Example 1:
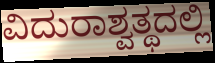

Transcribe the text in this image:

ವಿದುರಾಶ್ವತ್ಥದಲ್ಲಿ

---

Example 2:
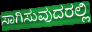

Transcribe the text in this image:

ಸಾಗಿಸುವುದರಲ್ಲಿ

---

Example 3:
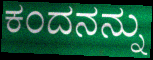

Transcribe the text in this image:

ಕಂದನನ್ನು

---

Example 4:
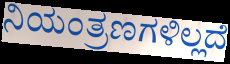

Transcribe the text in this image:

ನಿಯಂತ್ರಣಗಳಿಲ್ಲದೆ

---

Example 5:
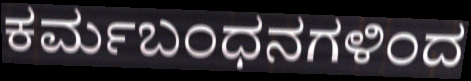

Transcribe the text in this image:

ಕರ್ಮಬಂಧನಗಳಿಂದ